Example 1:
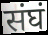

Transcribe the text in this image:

संघं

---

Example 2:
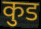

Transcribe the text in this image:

कुड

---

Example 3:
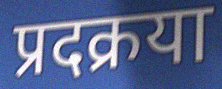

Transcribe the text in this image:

प्रदक्रया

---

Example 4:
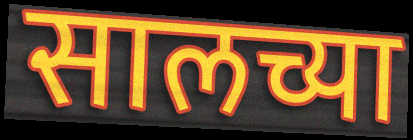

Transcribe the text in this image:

सालच्या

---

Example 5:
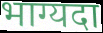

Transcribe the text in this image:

भाग्यदा